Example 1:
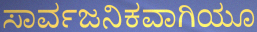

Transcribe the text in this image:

ಸಾರ್ವಜನಿಕವಾಗಿಯೂ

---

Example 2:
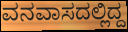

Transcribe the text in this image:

ವನವಾಸದಲ್ಲಿದ್ದ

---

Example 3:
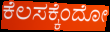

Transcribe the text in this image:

ಕೆಲಸಕ್ಕೆಂದೋ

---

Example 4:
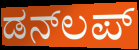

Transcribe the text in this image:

ಡನ್‌ಲಪ್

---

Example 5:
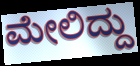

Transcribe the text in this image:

ಮೇಲಿದ್ದು